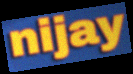
nijay